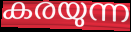
കരയുന്ന